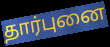
தார்புனை